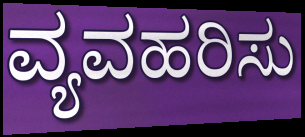
ವ್ಯವಹರಿಸು